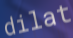
dilat